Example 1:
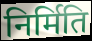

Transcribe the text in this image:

निर्मिति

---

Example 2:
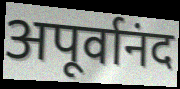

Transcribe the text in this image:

अपूर्वानंद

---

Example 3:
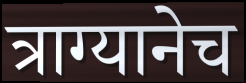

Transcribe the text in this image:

त्राग्यानेच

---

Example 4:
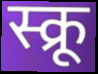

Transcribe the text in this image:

स्क्रू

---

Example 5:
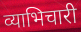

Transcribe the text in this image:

व्याभिचारी